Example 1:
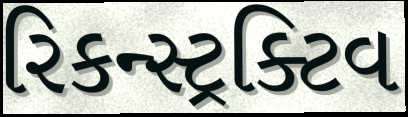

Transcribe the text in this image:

રિકન્સ્ટ્રક્ટિવ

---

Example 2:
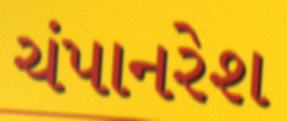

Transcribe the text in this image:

ચંપાનરેશ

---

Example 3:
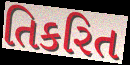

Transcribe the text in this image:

તિકરિત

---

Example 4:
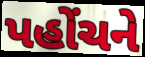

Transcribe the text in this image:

પહોંચને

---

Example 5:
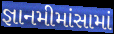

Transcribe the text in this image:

જ્ઞાનમીમાંસામાં